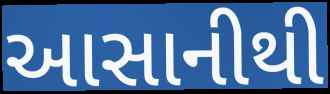
આસાનીથી